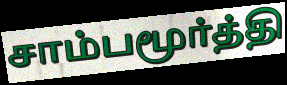
சாம்பமூர்த்தி